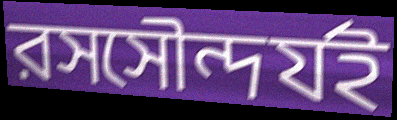
রসসৌন্দর্যই